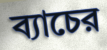
ব্যাচের